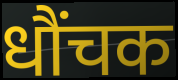
धौंचक